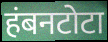
हंबनटोटा